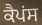
ਕੈਪਂਸ